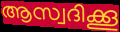
ആസ്വദിക്കൂ